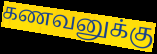
கணவனுக்கு